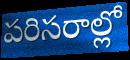
పరిసరాల్లో